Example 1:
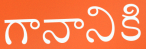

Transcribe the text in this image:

గానానికి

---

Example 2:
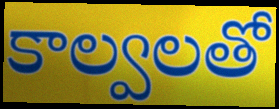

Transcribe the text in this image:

కాల్వలతో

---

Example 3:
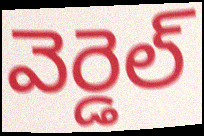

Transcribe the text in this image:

వెర్డెల్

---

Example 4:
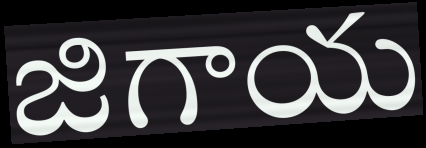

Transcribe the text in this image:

జిగాయ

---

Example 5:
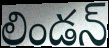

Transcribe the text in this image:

లిండన్